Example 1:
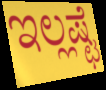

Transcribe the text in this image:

ಇಲ್ಲಷ್ಟೆ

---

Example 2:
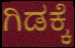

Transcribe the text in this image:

ಗಿಡಕ್ಕೆ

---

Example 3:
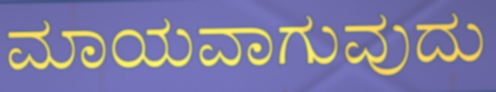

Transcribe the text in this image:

ಮಾಯವಾಗುವುದು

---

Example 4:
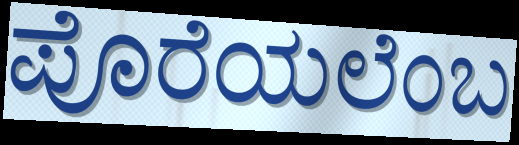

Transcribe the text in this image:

ಪೊರೆಯಲೆಂಬ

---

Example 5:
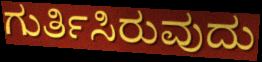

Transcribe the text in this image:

ಗುರ್ತಿಸಿರುವುದು